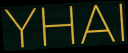
YHAI